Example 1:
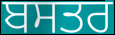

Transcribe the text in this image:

ਬਸਤਰ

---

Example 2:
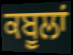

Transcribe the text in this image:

ਕਬੂਲਾਂ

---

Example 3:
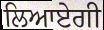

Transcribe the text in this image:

ਲਿਆਏਗੀ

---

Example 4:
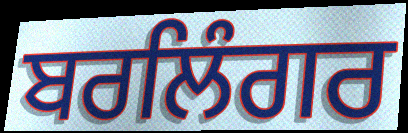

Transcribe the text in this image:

ਬਰਲਿੰਗਰ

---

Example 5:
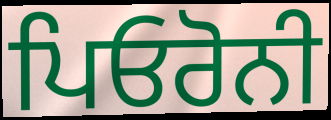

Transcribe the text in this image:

ਪਿਓਰੋਨੀ